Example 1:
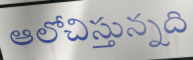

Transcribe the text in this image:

ఆలోచిస్తున్నది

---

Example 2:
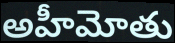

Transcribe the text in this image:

అహీమోతు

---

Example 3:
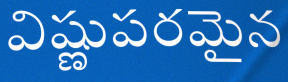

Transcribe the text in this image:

విష్ణుపరమైన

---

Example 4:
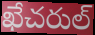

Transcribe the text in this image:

ఖేచరుల్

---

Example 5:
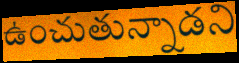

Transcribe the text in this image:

ఉంచుతున్నాడని